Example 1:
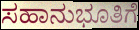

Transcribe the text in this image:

ಸಹಾನುಭೂತಿಗೆ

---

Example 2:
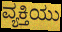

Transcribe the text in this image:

ವ್ಯಕ್ತಿಯು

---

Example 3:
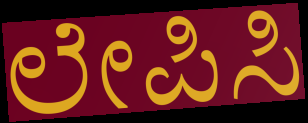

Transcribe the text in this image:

ಲೇಪಿಸಿ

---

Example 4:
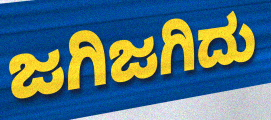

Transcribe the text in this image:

ಜಗಿಜಗಿದು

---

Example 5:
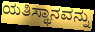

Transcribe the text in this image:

ಯತಿಸ್ಥಾನವನ್ನು